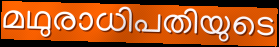
മഥുരാധിപതിയുടെ